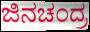
ಜಿನಚಂದ್ರ